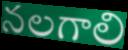
నలగాలి